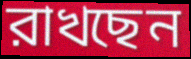
রাখছেন